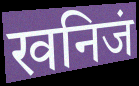
खनिजं